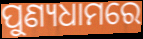
ପୁଣ୍ୟଧାମରେ